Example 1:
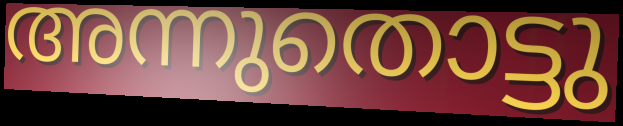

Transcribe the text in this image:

അന്നുതൊട്ടു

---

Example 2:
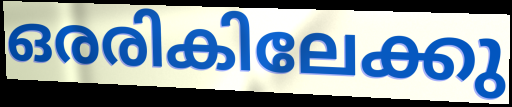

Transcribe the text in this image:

ഒരരികിലേക്കു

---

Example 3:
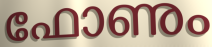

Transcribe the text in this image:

ഫോണും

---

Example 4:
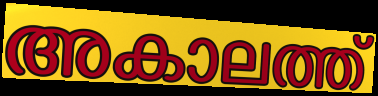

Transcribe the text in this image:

അകാലത്ത്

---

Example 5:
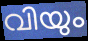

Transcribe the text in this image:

വിയും